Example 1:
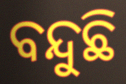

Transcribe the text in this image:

ବନ୍ଦୁଛି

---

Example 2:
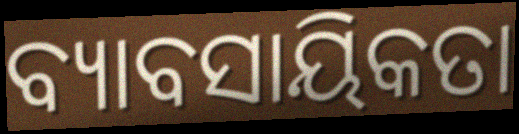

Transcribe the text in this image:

ବ୍ୟାବସାୟିକତା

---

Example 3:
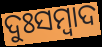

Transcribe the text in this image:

ଦୁଃସମ୍ୱାଦ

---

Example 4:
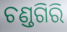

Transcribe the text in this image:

ଚଣ୍ଡଗିରି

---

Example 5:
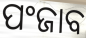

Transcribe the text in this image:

ପଂଜାବ